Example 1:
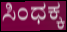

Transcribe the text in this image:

ಸಿಂಧಕ್ಕ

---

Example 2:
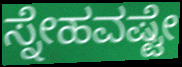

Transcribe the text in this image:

ಸ್ನೇಹವಷ್ಟೇ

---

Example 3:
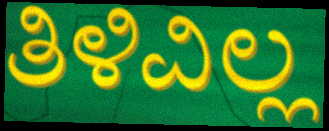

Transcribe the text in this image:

ತಿಳಿವಿಲ್ಲ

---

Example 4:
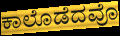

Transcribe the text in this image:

ಕಾಲೊಡೆದವೊ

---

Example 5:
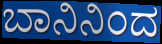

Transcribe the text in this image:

ಬಾನಿನಿಂದ